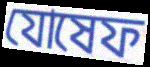
যোষেফ